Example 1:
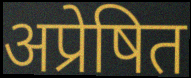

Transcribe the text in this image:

अप्रेषित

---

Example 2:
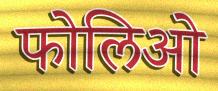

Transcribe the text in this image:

फोलिओ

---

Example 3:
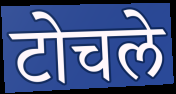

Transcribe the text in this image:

टोचले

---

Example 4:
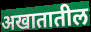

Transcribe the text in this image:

अखातातील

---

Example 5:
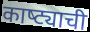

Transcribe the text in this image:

काष्ट्याची